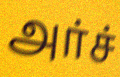
அர்ச்